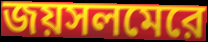
জয়সলমেরে